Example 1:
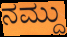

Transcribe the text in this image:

ನಮ್ದು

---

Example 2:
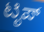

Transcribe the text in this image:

ಟೈಪ್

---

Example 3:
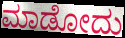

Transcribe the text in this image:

ಮಾಡೋದು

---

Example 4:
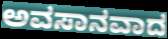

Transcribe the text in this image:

ಅವಸಾನವಾದ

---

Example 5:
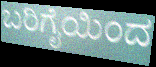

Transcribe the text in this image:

ಬರಿಗೈಯಿಂದ